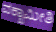
ವಕ್ಖಾಮೀತಿ